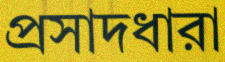
প্রসাদধারা